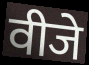
वीजे